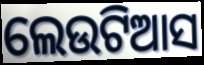
ଲେଉଟିଆସ